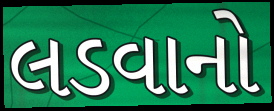
લડવાનો